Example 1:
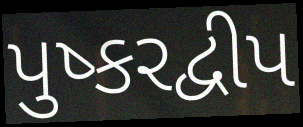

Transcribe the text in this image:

પુષ્કરદ્વીપ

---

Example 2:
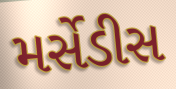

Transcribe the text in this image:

મર્સેડીસ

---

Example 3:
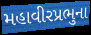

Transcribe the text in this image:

મહાવીરપ્રભુના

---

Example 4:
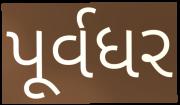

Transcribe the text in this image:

પૂર્વધર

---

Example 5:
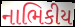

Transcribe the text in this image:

નાભિકીય